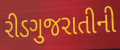
રીડગુજરાતીની